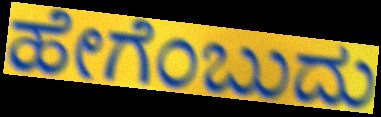
ಹೇಗೆಂಬುದು